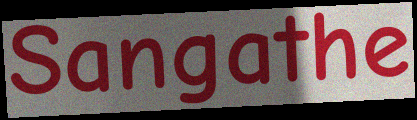
Sangathe